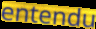
entendu